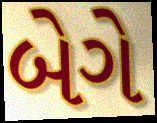
બેગે